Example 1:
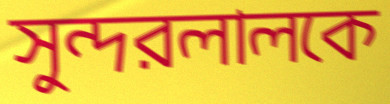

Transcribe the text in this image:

সুন্দরলালকে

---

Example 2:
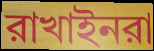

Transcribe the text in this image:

রাখাইনরা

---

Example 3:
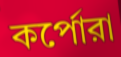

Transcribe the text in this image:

কর্পোরা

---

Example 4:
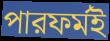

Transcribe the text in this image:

পারফর্মই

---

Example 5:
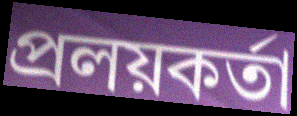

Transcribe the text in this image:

প্রলয়কর্তা